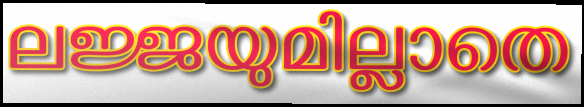
ലജ്ജയുമില്ലാതെ